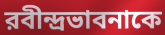
রবীন্দ্রভাবনাকে